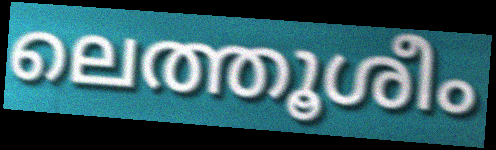
ലെത്തൂശീം